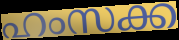
ഹംസക്ക